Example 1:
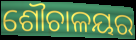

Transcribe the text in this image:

ଶୌଚାଳୟର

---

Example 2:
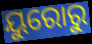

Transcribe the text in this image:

ୟୁରୋରୁ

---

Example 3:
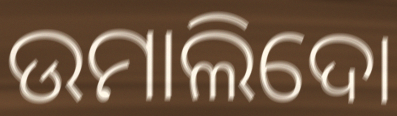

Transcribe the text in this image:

ଉମାଲିଦୋ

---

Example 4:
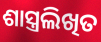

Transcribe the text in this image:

ଶାସ୍ତ୍ରଲିଖିତ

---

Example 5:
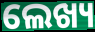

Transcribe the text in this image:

ଲେଖ୍ୟ